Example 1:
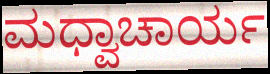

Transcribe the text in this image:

ಮಧ್ವಾಚಾರ್ಯ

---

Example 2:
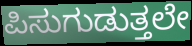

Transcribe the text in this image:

ಪಿಸುಗುಡುತ್ತಲೇ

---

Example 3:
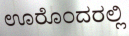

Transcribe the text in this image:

ಊರೊಂದರಲ್ಲಿ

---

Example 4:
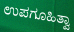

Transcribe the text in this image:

ಉಪಗೂಹಿತ್ವಾ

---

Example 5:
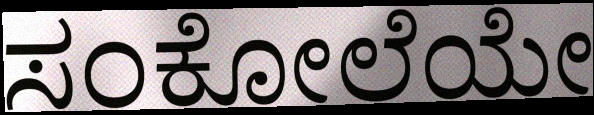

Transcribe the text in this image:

ಸಂಕೋಲೆಯೇ